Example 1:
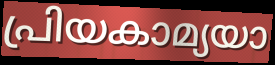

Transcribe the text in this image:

പ്രിയകാമ്യയാ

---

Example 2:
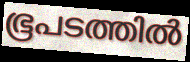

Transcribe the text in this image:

ഭൂപടത്തിൽ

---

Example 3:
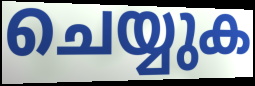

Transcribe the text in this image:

ചെയ്യുക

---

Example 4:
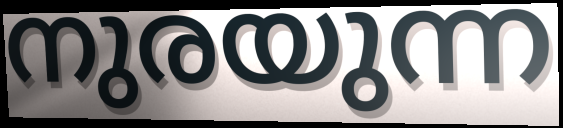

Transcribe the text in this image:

നുരയുന്ന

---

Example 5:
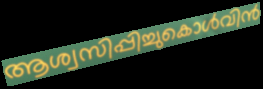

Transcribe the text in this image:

ആശ്വസിപ്പിച്ചുകൊൾവിൻ